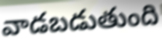
వాడబడుతుంది